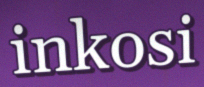
inkosi